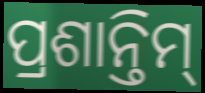
ପ୍ରଶାନ୍ତିମ୍